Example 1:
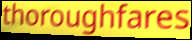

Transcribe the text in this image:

thoroughfares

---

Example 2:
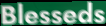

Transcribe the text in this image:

Blesseds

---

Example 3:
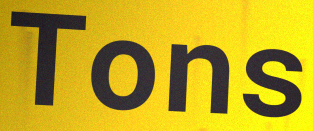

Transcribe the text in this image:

Tons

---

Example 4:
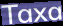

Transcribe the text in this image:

Taxa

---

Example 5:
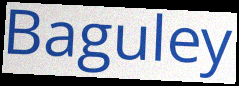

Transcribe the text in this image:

Baguley